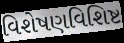
વિશેષણવિશિષ્ટ